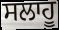
ਸਲਾਹੂ